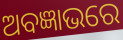
ଅବଜ୍ଞାଭରେ